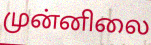
முன்னிலை